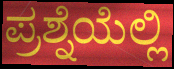
ಪ್ರಶ್ನೆಯೆಲ್ಲಿ